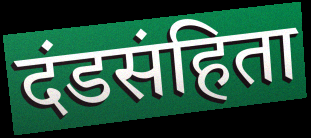
दंडसंहिता